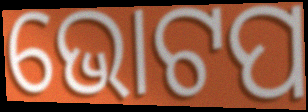
ଭୋଟପ